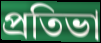
প্ৰতিভা